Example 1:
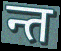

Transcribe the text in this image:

न्त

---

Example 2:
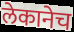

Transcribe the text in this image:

लेकानेच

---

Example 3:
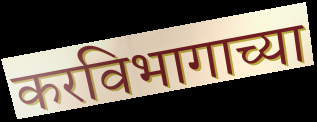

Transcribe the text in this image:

करविभागाच्या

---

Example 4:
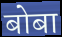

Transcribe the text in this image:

बोबा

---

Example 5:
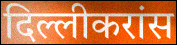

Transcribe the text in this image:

दिल्लीकरांस